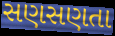
સણસણતા